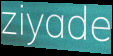
ziyade